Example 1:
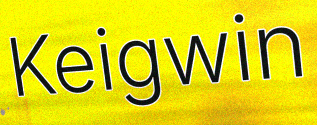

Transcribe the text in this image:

Keigwin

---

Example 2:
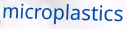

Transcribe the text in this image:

microplastics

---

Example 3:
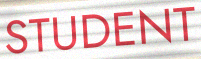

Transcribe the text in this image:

STUDENT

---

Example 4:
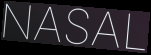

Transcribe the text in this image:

NASAL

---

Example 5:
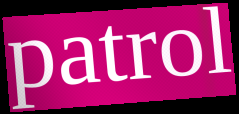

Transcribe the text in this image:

patrol